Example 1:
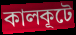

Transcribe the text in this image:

কালকূটে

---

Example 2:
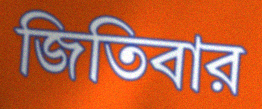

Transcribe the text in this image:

জিতিবার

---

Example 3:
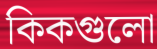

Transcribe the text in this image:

কিকগুলো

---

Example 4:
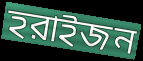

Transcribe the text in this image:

হরাইজন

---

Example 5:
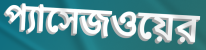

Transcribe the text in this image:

প্যাসেজওয়ের